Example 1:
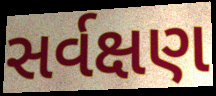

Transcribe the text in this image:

સર્વક્ષણ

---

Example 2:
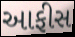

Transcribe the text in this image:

આફીસ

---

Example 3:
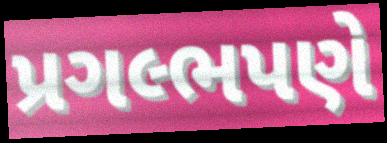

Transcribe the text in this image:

પ્રગલ્ભપણે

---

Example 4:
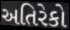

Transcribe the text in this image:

અતિરેકો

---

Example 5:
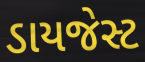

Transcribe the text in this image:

ડાયજેસ્ટ